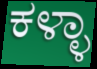
ಕಳ್ಳಾ